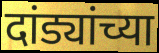
दांड्यांच्या